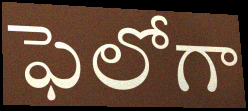
ఫెలోగా